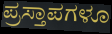
ಪ್ರಸ್ತಾಪಗಳೂ